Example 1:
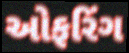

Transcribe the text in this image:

ઓફરિંગ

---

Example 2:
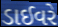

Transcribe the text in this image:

ડાઈવરે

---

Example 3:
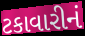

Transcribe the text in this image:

ટકાવારીનં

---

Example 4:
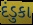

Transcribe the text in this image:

દંડુકા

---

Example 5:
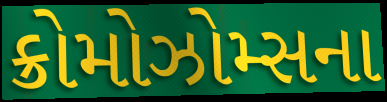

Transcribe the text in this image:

ક્રોમોઝોમ્સના